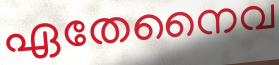
ഏതേനൈവ